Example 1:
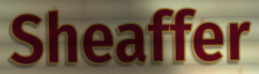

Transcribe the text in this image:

Sheaffer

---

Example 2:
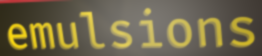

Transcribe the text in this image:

emulsions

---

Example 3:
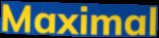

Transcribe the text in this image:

Maximal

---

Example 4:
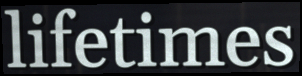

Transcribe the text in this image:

lifetimes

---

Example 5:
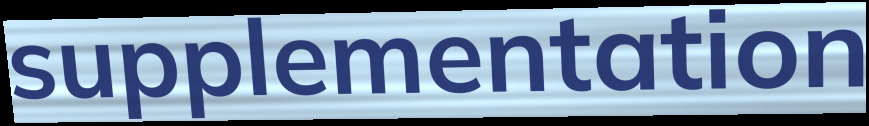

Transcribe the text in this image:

supplementation